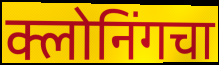
क्लोनिंगचा